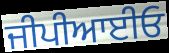
ਜੀਪੀਆਈਓ